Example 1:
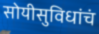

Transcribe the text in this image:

सोयीसुविधांचं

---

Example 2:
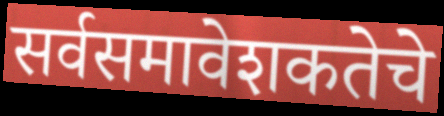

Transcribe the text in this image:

सर्वसमावेशकतेचे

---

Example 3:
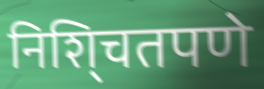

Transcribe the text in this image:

निश्‍चितपणे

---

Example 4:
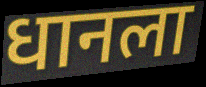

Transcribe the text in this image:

धानला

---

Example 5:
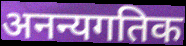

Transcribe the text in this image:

अनन्यगतिक